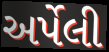
અર્પેલી